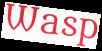
Wasp